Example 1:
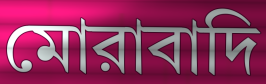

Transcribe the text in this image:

মোরাবাদি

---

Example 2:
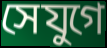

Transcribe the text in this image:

সেযুগে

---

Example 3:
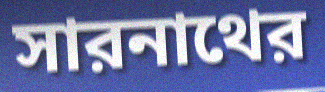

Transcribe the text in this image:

সারনাথের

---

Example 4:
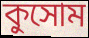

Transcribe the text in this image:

কুসোম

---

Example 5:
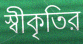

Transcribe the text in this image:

স্বীকৃতির